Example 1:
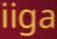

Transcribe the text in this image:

iiga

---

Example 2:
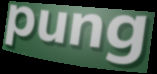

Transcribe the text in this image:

pung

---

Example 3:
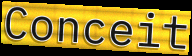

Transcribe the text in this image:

Conceit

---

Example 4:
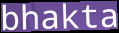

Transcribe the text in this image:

bhakta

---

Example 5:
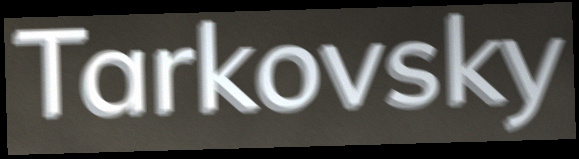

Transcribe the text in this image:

Tarkovsky